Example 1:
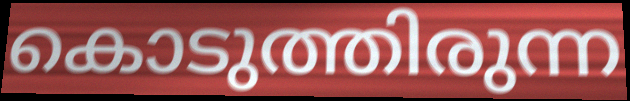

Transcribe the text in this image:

കൊടുത്തിരുന്ന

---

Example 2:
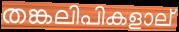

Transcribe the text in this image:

തങ്കലിപികളാല്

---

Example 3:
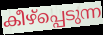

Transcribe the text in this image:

കീഴ്പ്പെടുന്ന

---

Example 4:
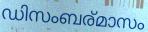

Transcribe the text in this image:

ഡിസംബര്മാസം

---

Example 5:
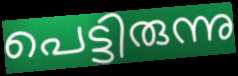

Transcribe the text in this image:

പെട്ടിരുന്നു